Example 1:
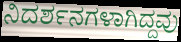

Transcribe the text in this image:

ನಿದರ್ಶನಗಳಾಗಿದ್ದವು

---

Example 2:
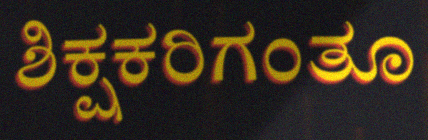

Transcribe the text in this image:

ಶಿಕ್ಷಕರಿಗಂತೂ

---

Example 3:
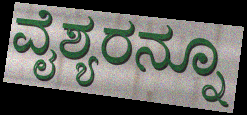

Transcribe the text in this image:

ವೈಶ್ಯರನ್ನೂ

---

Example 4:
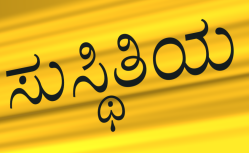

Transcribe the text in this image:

ಸುಸ್ಥಿತಿಯ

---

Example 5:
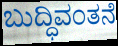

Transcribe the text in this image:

ಬುದ್ಧಿವಂತನೆ